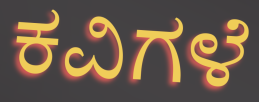
ಕವಿಗಳೆ